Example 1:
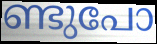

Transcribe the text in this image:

ണ്ടുപോ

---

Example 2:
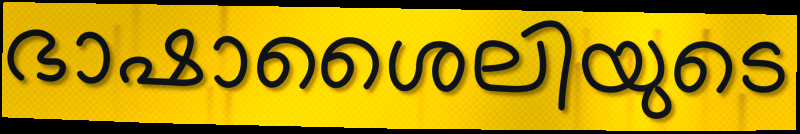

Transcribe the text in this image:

ഭാഷാശൈലിയുടെ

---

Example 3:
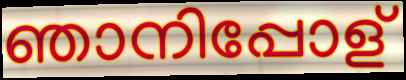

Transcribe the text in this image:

ഞാനിപ്പോള്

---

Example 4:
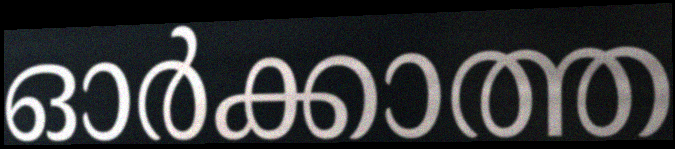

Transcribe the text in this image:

ഓർക്കാത്ത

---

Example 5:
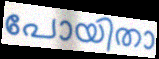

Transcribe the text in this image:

പോയിതാ